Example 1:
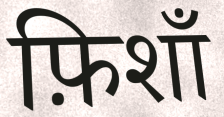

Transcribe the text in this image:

फ़िशाँ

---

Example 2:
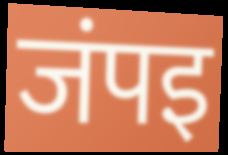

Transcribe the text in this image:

जंपइ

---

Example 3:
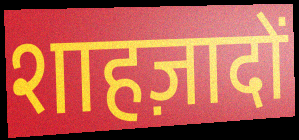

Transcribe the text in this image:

शाहज़ादों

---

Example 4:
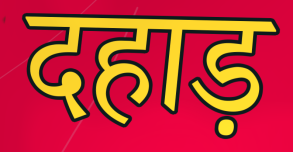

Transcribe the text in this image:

दहाड़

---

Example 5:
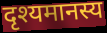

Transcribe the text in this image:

दृश्यमानस्य